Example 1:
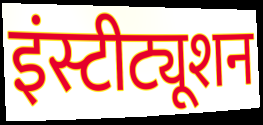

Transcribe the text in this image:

इंस्‍टीट्यूशन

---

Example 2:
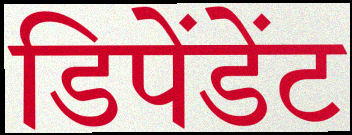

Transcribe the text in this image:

डिपेंडेंट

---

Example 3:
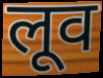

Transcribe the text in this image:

लूव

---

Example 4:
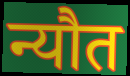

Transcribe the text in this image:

न्यौत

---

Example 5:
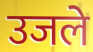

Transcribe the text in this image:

उजले